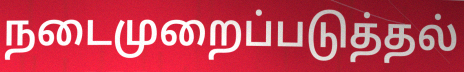
நடைமுறைப்படுத்தல்